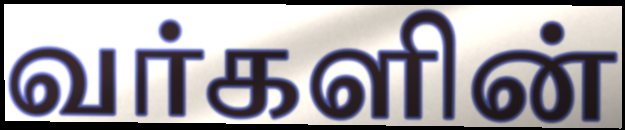
வர்களின்